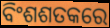
ବିଂଶଶତକରେ